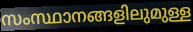
സംസ്ഥാനങ്ങളിലുമുള്ള